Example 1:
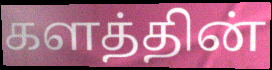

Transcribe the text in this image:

களத்தின்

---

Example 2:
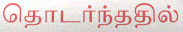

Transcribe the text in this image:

தொடர்ந்ததில்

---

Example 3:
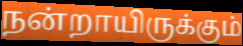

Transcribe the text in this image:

நன்றாயிருக்கும்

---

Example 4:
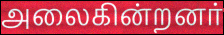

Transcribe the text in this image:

அலைகின்றனர்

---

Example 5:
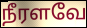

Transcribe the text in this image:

நீரளவே